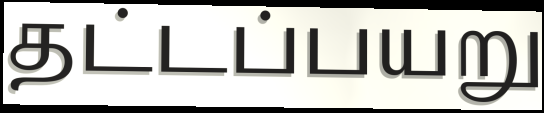
தட்டப்பயறு